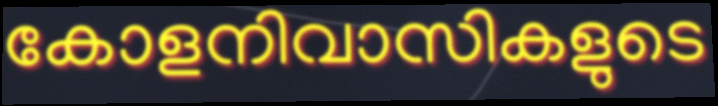
കോളനിവാസികളുടെ